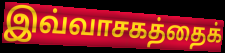
இவ்வாசகத்தைக்